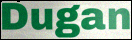
Dugan